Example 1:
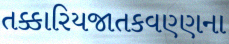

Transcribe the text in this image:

તક્કારિયજાતકવણ્ણના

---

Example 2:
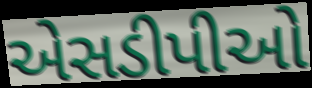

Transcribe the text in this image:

એસડીપીઓ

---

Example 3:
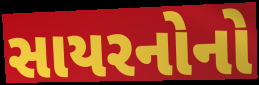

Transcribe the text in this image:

સાયરનોનો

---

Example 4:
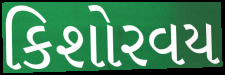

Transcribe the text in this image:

કિશોરવય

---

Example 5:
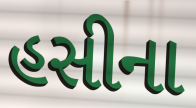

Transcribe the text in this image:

હસીના